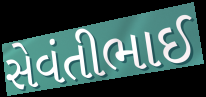
સેવંતીભાઈ